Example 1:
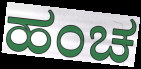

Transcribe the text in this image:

ಹಂಚ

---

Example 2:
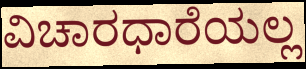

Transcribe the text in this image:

ವಿಚಾರಧಾರೆಯಲ್ಲ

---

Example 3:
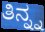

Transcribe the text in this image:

ತಿನ್ನ್ನ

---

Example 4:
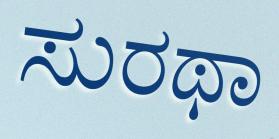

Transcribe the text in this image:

ಸುರಥಾ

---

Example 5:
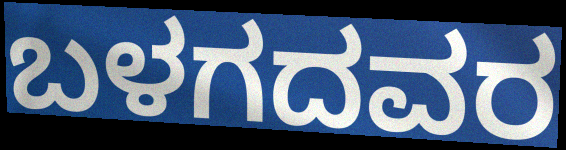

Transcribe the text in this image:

ಬಳಗದವರ